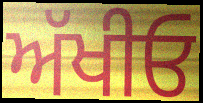
ਅੱਖੀਓ